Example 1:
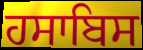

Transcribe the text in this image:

ਹਸਾਬਿਸ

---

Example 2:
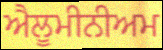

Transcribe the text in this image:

ਐਲੂਮੀਨੀਅਮ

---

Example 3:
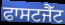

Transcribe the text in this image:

ਫਾਸਟਜੈੱਟ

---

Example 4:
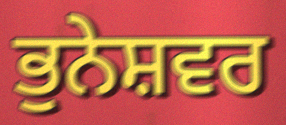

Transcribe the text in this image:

ਭੁਨੇਸ਼ਵਰ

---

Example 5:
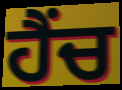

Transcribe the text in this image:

ਹੈਂਚ